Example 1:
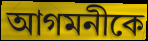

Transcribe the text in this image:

আগমনীকে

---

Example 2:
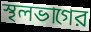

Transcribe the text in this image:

স্থলভাগের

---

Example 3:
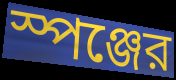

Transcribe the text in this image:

স্পঞ্জের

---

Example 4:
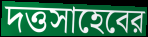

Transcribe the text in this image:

দত্তসাহেবের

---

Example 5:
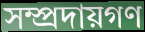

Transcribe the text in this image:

সম্প্রদায়গণ